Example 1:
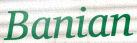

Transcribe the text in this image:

Banian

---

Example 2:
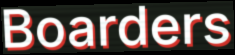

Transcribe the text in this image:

Boarders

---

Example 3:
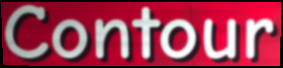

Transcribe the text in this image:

Contour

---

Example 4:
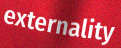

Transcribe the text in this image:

externality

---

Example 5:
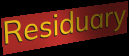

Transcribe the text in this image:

Residuary